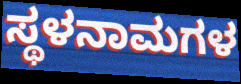
ಸ್ಥಳನಾಮಗಳ